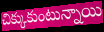
చిక్కుకుంటున్నాయి